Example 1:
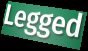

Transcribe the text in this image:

Legged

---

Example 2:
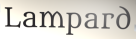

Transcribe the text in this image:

Lampard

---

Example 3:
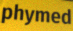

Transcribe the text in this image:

phymed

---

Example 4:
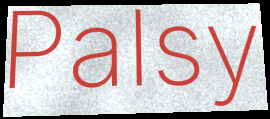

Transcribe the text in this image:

Palsy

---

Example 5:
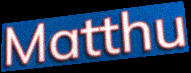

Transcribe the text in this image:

Matthu